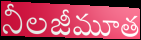
నీలజీమూత